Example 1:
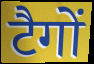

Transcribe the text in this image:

टैगों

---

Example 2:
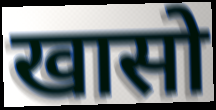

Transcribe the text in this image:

खासो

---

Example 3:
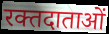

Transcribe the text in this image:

रक्तदाताओं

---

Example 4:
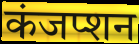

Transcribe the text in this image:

कंजप्शन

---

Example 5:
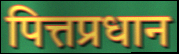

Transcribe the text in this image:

पित्तप्रधान